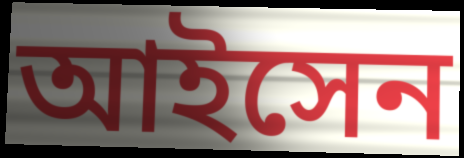
আইসেন